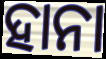
ହାନା